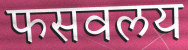
फसवलय